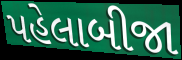
પહેલાબીજા